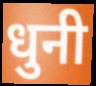
धुनी